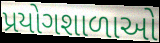
પ્રયોગશાળાઓ